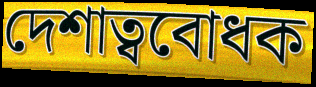
দেশাত্ববোধক